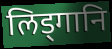
लिड्गानि